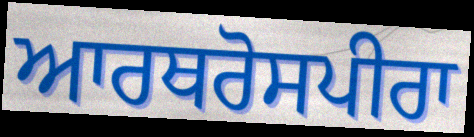
ਆਰਥਰੋਸਪੀਰਾ